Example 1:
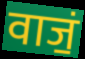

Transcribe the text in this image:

वाजं॒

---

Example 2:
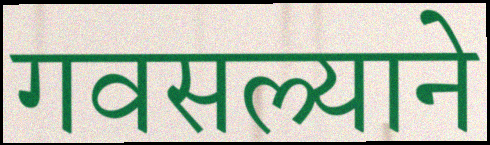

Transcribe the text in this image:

गवसल्याने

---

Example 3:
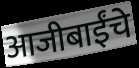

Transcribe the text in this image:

आजीबाईंचे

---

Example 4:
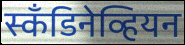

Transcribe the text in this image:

स्कँडिनेव्हियन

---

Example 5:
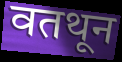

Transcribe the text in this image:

वतथून